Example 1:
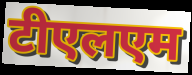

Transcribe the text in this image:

टीएलएम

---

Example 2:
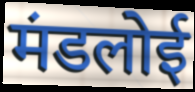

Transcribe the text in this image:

मंडलोई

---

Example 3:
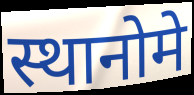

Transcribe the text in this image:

स्थानोमे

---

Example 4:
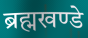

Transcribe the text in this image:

ब्रह्मखण्डे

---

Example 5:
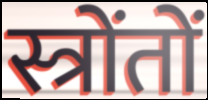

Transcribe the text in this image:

स्त्रोंतों